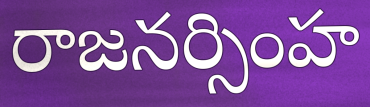
రాజనర్సింహ